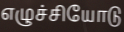
எழுச்சியோடு